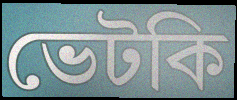
ভেটকি